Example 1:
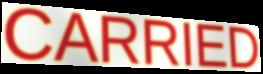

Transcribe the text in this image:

CARRIED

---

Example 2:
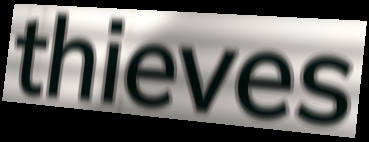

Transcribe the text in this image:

thieves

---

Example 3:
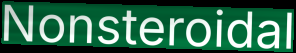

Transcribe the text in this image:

Nonsteroidal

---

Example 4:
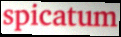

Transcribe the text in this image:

spicatum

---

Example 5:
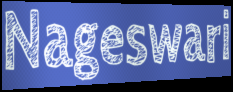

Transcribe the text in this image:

Nageswari